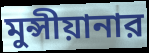
মুন্সীয়ানার